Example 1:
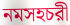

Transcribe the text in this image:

নমসহচরী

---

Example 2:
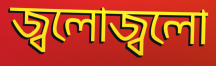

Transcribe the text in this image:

জ্বলোজ্বলো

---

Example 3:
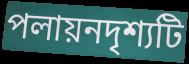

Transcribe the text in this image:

পলায়নদৃশ্যটি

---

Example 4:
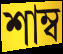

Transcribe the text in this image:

শাম্ব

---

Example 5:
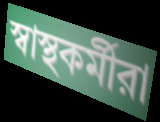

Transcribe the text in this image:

স্বাস্থকর্মীরা